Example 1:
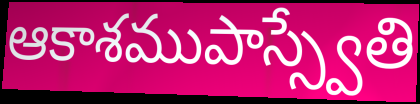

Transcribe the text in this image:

ఆకాశముపాస్స్వేతి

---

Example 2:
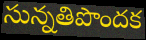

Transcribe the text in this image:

సున్నతిపొందక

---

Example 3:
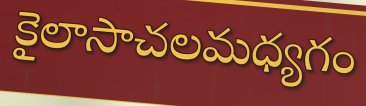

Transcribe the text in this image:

కైలాసాచలమధ్యగం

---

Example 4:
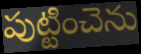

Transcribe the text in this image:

పుట్టించెను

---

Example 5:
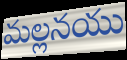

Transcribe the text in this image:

మల్లనయు